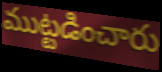
ముట్టడించారు